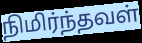
நிமிர்ந்தவள்